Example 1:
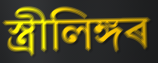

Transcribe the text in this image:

স্ত্ৰীলিঙ্গৰ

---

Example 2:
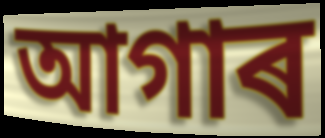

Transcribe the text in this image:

আগাৰ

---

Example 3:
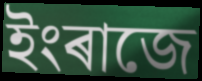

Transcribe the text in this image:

ইংৰাজে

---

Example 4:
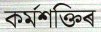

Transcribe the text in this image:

কৰ্মশক্তিৰ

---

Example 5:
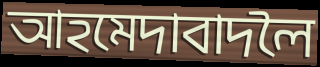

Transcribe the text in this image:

আহমেদাবাদলৈ